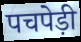
पचपेड़ी